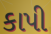
કાપી